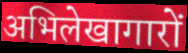
अभिलेखागारों